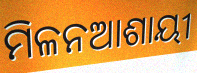
ମିଳନଆଶାୟୀ